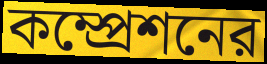
কম্প্রেশনের